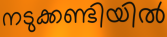
നടുക്കണ്ടിയിൽ